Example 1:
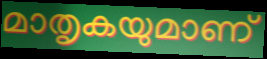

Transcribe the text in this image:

മാതൃകയുമാണ്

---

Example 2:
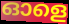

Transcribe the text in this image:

ഓളെ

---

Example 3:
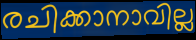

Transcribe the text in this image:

രചിക്കാനാവില്ല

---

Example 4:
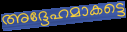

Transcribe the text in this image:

അദ്ദേഹമാകട്ടെ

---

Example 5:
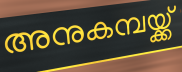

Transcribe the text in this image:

അനുകമ്പയ്ക്ക്